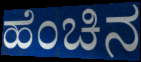
ಹೆಂಚಿನ